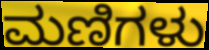
ಮಣಿಗಳು